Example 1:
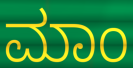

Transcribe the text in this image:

ಮಾಂ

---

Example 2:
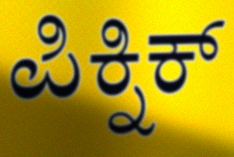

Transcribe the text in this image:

ಪಿಕ್ನಿಕ್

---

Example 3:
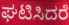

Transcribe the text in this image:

ಘಟಿಸಿದರೆ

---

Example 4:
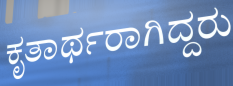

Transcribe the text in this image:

ಕೃತಾರ್ಥರಾಗಿದ್ದರು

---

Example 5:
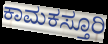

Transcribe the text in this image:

ಕಾಮಕಸ್ತೂರಿ